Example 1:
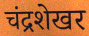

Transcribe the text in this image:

चंद्रशेखर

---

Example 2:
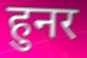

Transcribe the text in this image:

हुनर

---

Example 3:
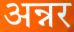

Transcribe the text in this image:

अन्नर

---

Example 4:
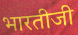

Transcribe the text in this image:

भारतीजी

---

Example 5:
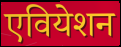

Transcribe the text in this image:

एवियेशन